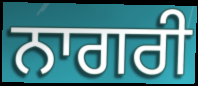
ਨਾਗਰੀ